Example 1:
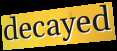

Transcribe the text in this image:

decayed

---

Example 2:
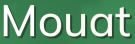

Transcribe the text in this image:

Mouat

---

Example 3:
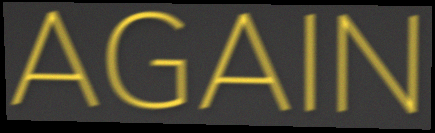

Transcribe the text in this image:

AGAIN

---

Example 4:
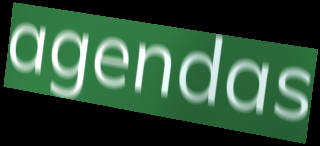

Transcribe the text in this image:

agendas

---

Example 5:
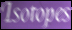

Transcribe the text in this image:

Isotopes